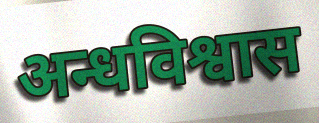
अन्धविश्वास